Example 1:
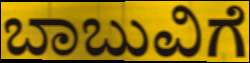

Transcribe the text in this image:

ಬಾಬುವಿಗೆ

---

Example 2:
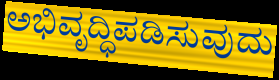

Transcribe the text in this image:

ಅಭಿವೃದ್ಧಿಪಡಿಸುವುದು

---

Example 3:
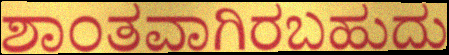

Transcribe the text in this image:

ಶಾಂತವಾಗಿರಬಹುದು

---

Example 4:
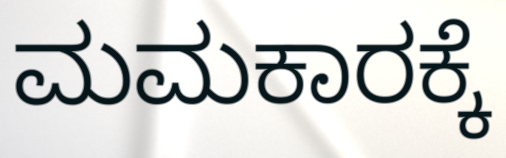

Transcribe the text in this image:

ಮಮಕಾರಕ್ಕೆ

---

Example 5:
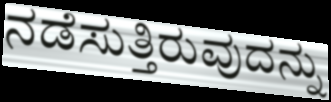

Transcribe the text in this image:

ನಡೆಸುತ್ತಿರುವುದನ್ನು